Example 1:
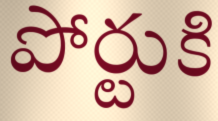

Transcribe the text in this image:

పోర్టుకి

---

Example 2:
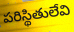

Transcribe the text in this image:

పరిస్థితులేవి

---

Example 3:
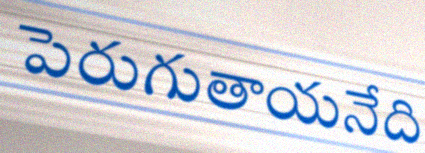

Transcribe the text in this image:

పెరుగుతాయనేది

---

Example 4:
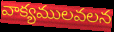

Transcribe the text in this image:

వాక్యములవలన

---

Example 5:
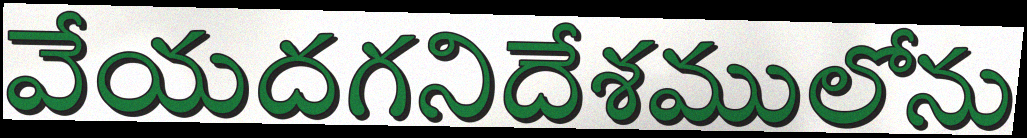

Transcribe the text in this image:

వేయదగనిదేశములోను